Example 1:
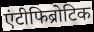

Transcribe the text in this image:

एंटीफिब्रोटिक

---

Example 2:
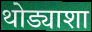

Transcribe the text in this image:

थोड्याशा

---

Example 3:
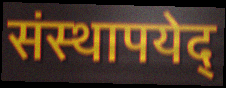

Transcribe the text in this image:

संस्थापयेद्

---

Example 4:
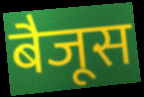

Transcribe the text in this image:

बैजूस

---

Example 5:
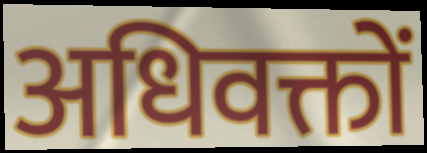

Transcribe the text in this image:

अधिवक्तों